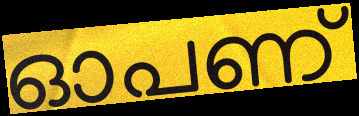
ഓപണ്